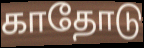
காதோடு